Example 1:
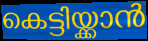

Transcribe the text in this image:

കെട്ടിയ്ക്കാൻ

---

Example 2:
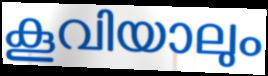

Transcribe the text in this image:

കൂവിയാലും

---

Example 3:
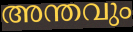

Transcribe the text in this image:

അന്തവും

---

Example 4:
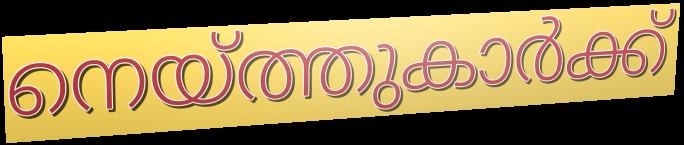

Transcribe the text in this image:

നെയ്ത്തുകാർക്ക്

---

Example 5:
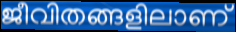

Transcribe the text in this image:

ജീവിതങ്ങളിലാണ്